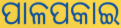
ପାଳପକାଇ